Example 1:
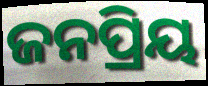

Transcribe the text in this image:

ଜନପ୍ରିୟ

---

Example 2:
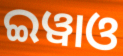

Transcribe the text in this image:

ଇୱାଓ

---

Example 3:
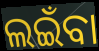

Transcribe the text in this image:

ଲଇଁବା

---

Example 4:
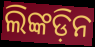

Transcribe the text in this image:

ଲିଙ୍କଡ଼ିନ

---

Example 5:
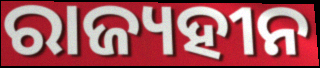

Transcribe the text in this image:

ରାଜ୍ୟହୀନ